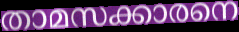
താമസക്കാരനെ